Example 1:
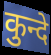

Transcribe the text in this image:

कुन्दे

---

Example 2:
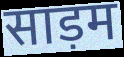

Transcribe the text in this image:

साड़म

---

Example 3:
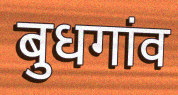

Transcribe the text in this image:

बुधगांव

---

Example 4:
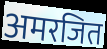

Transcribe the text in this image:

अमरजित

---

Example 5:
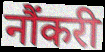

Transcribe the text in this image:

नौंकरी